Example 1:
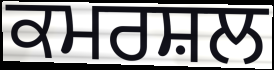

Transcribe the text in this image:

ਕਮਰਸ਼ਲ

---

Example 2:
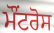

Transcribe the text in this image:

ਮੌਂਟਰੋਸ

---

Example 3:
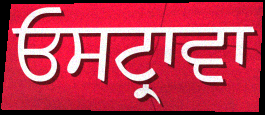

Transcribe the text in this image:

ਓਸਟ੍ਰਾਵਾ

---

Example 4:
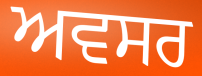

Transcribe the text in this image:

ਅਵਸਰ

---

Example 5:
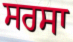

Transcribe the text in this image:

ਸਰਸਾ